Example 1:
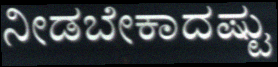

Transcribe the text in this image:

ನೀಡಬೇಕಾದಷ್ಟು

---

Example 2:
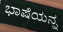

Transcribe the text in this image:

ಭಾಷೆಯನ್ನ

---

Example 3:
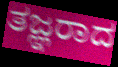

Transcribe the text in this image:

ತಜ್ಞರಾದ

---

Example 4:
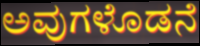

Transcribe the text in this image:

ಅವುಗಳೊಡನೆ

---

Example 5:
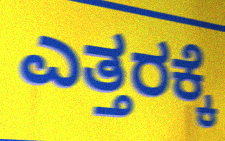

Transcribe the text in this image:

ಎತ್ತರಕ್ಕೆ